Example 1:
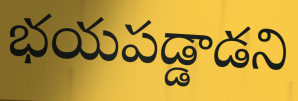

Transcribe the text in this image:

భయపడ్డాడని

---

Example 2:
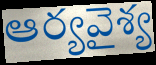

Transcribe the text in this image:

ఆర్యవైశ్య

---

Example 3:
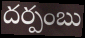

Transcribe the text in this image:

దర్పంబు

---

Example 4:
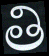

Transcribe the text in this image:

తి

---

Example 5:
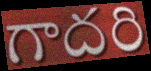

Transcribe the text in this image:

గాదరి